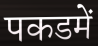
पकडमें